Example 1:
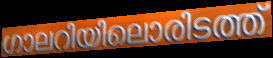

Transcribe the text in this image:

ഗാലറിയിലൊരിടത്ത്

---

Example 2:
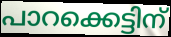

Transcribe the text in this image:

പാറക്കെട്ടിന്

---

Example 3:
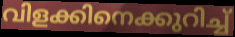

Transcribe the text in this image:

വിളക്കിനെക്കുറിച്ച്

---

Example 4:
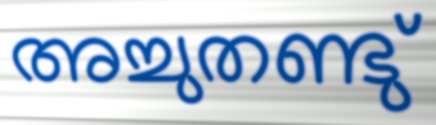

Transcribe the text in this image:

അച്ചുതണ്ടു്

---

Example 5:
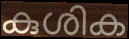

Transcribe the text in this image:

കുശിക